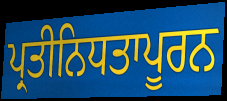
ਪ੍ਰਤੀਨਿਧਤਾਪੂਰਨ